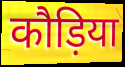
कौड़िया